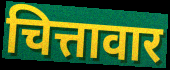
चित्तावार